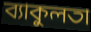
ব্যাকুলতা